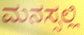
ಮನಸ್ಸಲ್ಲಿ